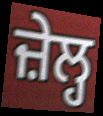
ਜ਼ੇਲ੍ਹ